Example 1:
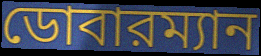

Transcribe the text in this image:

ডোবারম্যান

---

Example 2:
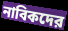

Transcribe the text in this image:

নাবিকদের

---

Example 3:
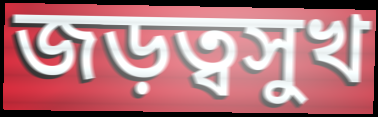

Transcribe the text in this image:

জড়ত্বসুখ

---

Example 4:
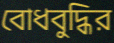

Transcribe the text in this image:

বোধবুদ্ধির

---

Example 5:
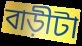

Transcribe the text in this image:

বাড়ীটা